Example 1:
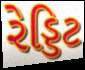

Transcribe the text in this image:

રેડ્ડિટ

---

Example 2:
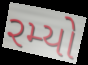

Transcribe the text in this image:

રમ્યો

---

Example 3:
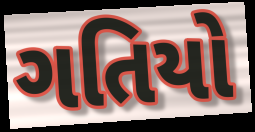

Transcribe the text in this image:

ગતિયો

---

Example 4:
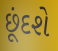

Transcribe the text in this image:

છૂંદશે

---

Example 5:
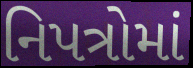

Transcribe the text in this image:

નિપત્રોમાં